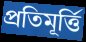
প্ৰতিমূৰ্ত্তি